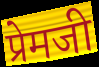
प्रेमजी